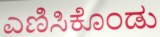
ಎಣಿಸಿಕೊಂಡು